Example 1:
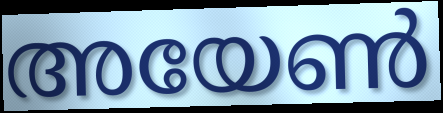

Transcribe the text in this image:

അയേൺ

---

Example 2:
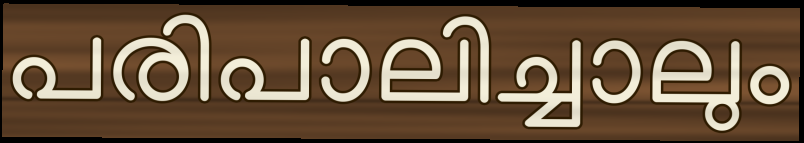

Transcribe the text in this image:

പരിപാലിച്ചാലും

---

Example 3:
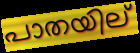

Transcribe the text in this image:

പാതയില്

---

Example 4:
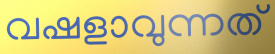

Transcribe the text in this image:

വഷളാവുന്നത്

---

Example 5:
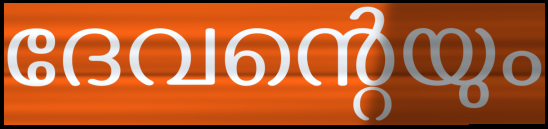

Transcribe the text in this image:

ദേവന്റെയും